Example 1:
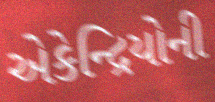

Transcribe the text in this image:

એકેન્દ્રિયોની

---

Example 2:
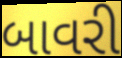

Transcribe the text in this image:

બાવરી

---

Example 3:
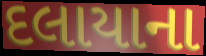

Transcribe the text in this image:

દલાયાના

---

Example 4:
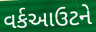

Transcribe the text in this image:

વર્કઆઉટને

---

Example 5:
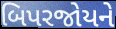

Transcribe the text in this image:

બિપરજોયને